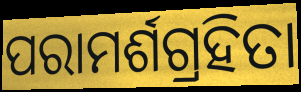
ପରାମର୍ଶଗ୍ରହିତା